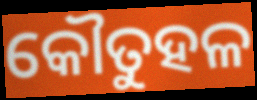
କୌତୁହଳ